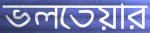
ভলতেয়ার